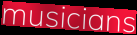
musicians